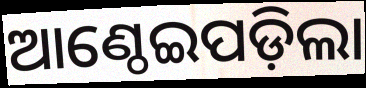
ଆଣ୍ଠେଇପଡ଼ିଲା